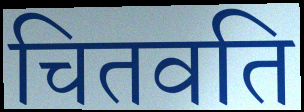
चितवति